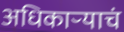
अधिकाऱ्याचं